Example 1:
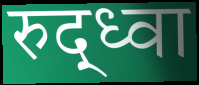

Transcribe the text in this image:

रुद्ध्वा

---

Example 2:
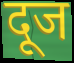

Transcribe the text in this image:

दूज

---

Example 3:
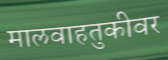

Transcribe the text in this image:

मालवाहतुकीवर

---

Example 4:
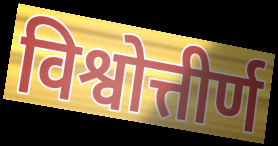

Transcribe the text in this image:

विश्वोत्तीर्ण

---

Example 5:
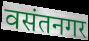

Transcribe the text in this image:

वसंतनगर